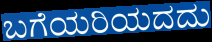
ಬಗೆಯರಿಯದದು